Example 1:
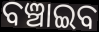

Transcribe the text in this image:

ବଞ୍ଚାଇବ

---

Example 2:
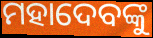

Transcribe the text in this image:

ମହାଦେବଙ୍କୁ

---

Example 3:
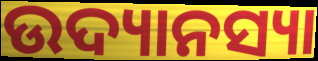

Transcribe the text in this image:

ଉଦ୍ୟାନସ୍ୟା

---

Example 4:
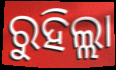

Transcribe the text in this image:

ରୁହିଲ୍ଲା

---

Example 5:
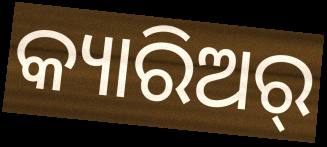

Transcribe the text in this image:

କ୍ୟାରିଅର୍